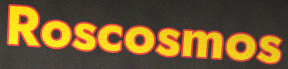
Roscosmos